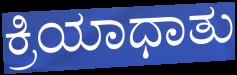
ಕ್ರಿಯಾಧಾತು